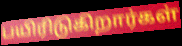
பயிரிடுகிறார்கள்